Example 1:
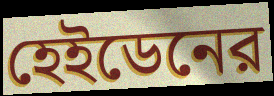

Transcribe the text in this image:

হেইডেনের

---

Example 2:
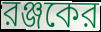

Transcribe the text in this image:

রঞ্জকের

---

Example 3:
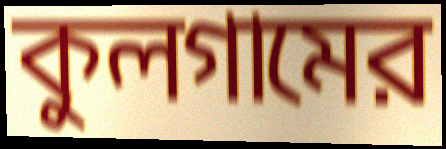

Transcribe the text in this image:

কুলগামের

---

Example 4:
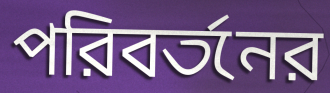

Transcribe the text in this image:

পরিবর্তনের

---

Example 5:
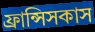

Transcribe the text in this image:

ফ্রান্সিসকাস